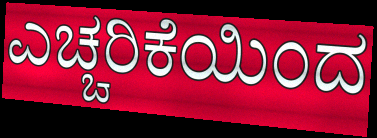
ಎಚ್ಚರಿಕೆಯಿಂದ